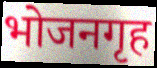
भोजनगृह